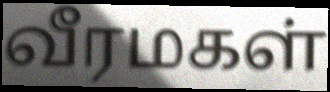
வீரமகள்